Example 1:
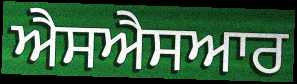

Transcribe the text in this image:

ਐਸਐਸਆਰ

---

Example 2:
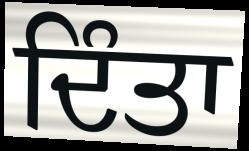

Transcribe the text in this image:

ਦਿੰਤਾ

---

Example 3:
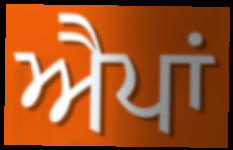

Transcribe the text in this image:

ਐਪਾਂ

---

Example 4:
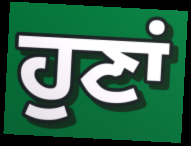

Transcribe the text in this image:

ਹੁਣਾਂ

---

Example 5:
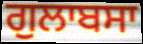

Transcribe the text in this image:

ਗੁਲਾਬਸਾ